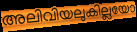
അലിവിയലുകില്ലയോ